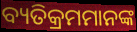
ବ୍ୟତିକ୍ରମମାନଙ୍କ